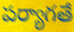
పర్యాగతే